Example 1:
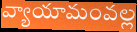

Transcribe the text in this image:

వ్యాయామంవల్ల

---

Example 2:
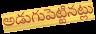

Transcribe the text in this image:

అడుగుపెట్టినట్లు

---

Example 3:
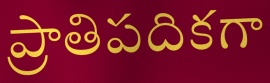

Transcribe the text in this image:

ప్రాతిపదికగా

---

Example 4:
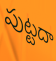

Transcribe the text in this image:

పుట్టదా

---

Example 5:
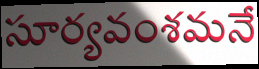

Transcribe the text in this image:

సూర్యవంశమనే